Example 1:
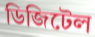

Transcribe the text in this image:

ডিজিটেল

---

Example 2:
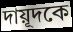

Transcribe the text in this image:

দায়ূদকে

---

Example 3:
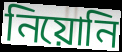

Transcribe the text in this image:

নিয়োনি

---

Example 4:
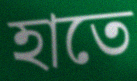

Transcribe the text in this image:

হাতে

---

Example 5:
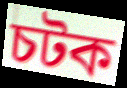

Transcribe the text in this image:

চটক